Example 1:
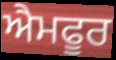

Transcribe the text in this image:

ਐਮਫੂਰ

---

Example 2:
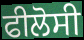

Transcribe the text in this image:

ਫੀਲੋਸੀ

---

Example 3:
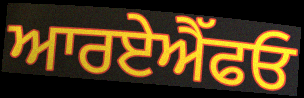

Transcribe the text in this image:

ਆਰਏਐੱਫਓ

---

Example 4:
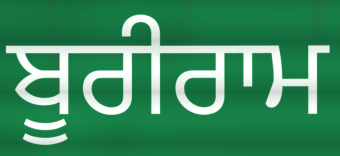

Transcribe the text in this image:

ਬੂਰੀਰਾਮ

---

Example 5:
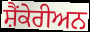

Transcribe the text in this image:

ਸ਼ੈਂਕੇਰੀਅਨ